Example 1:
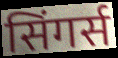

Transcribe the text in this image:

सिंगर्स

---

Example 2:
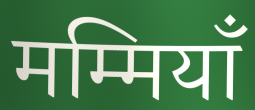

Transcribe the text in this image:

मम्मियाँ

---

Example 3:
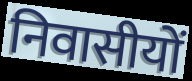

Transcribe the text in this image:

निवासीयों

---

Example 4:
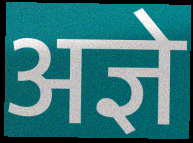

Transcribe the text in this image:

अज्ञे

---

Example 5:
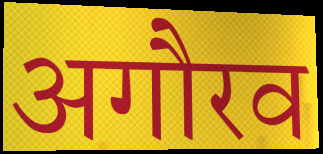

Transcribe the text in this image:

अगौरव